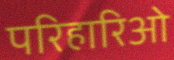
परिहारिओ